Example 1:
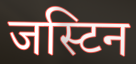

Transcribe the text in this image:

जस्टिन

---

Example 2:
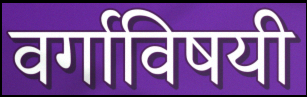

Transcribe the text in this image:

वर्गाविषयी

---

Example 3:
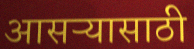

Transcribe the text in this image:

आसऱ्यासाठी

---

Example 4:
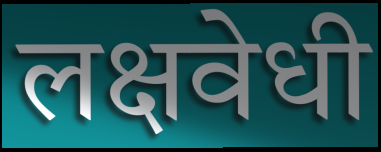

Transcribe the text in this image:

लक्षवेधी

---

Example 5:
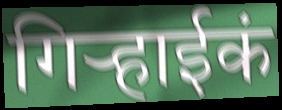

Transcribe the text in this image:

गिऱ्हाईकं